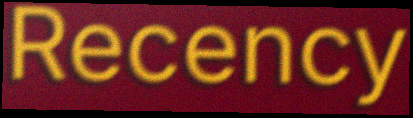
Recency